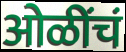
ओळींचं